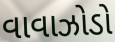
વાવાઝોડો